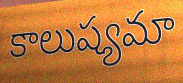
కాలుష్యమా